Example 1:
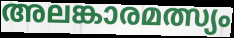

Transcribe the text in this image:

അലങ്കാരമത്സ്യം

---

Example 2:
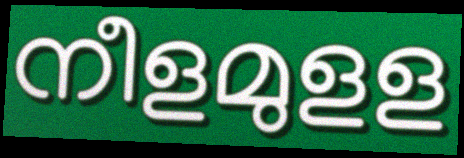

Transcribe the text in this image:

നീളമുളള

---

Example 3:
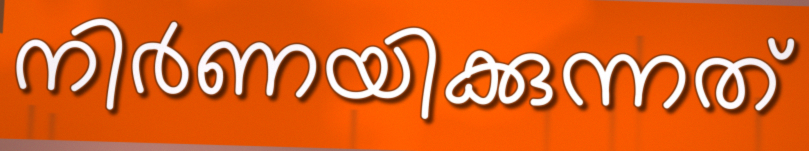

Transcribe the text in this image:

നിർണയിക്കുന്നത്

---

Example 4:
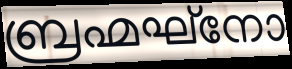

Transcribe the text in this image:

ബ്രഹ്മഘ്നോ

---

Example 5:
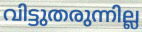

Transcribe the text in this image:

വിട്ടുതരുന്നില്ല